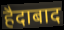
हैदाबाद